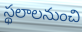
స్థలాలనుంచి